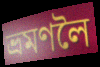
ভ্ৰমণলৈ